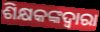
ଶିକ୍ଷକଙ୍କଦ୍ଵାରା